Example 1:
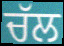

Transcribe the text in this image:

ਚੱਲ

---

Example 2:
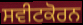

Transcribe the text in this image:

ਸਵੀਟਕੋਰਨ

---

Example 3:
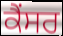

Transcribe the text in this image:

ਕੈਂਸਰ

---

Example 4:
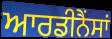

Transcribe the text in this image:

ਆਰਡੀਨੈਂਸਾਂ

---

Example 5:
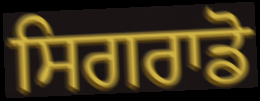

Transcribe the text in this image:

ਸਿਗਰਾਡੋ